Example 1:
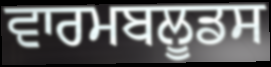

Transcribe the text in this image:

ਵਾਰਮਬਲੂਡਸ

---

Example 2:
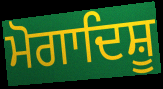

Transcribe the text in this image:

ਮੋਗਾਦਿਸ਼ੂ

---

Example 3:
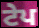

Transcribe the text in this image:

ਟੇਪ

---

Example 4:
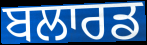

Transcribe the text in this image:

ਬਲਾਰਡ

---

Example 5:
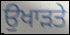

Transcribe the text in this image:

ਉਖਾੜਤੇ